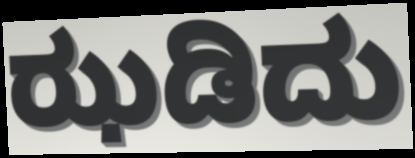
ಝಡಿದು